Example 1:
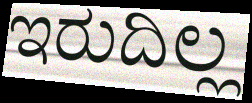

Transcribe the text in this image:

ಇರುದಿಲ್ಲ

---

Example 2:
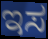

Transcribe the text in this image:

ಇಸ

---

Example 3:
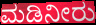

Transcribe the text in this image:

ಮಡಿನೀರು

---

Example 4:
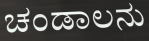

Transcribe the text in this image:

ಚಂಡಾಲನು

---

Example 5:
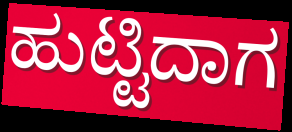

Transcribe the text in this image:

ಹುಟ್ಟಿದಾಗ